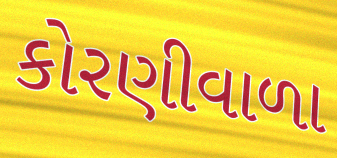
કોરણીવાળા